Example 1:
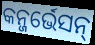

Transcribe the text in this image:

କନ୍ଜର୍ଭେସନ୍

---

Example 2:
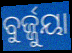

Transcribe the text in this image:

ବୁର୍ଜ୍ଜୁୟା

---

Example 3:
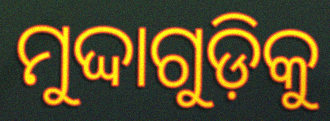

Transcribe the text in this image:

ମୁଦ୍ଦାଗୁଡ଼ିକୁ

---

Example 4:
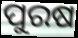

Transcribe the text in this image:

ପୁରଷ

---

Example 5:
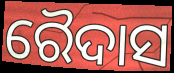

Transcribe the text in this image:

ରୈଦାସ